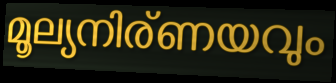
മൂല്യനിര്ണയവും